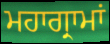
ਮਹਾਗ੍ਰਾਮਾਂ